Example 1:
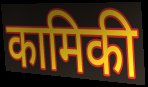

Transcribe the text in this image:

कामिकी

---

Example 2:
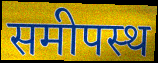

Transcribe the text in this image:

समीपस्थ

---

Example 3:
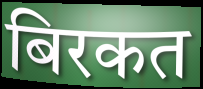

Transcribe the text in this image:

बिरकत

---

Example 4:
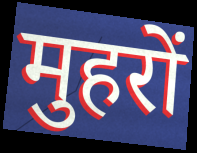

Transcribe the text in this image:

मुहरों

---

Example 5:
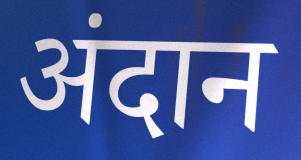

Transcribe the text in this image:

अंदान